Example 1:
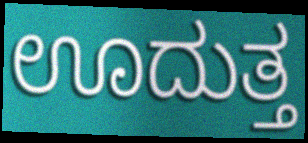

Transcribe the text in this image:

ಊದುತ್ತ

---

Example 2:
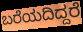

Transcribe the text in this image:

ಬರೆಯದಿದ್ದರೆ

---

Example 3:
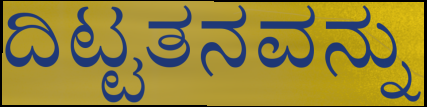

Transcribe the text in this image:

ದಿಟ್ಟತನವನ್ನು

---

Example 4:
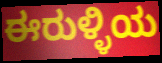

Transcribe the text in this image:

ಈರುಳ್ಳಿಯ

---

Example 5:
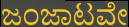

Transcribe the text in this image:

ಜಂಜಾಟವೇ